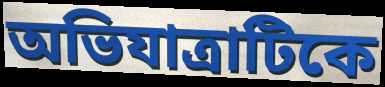
অভিযাত্রাটিকে